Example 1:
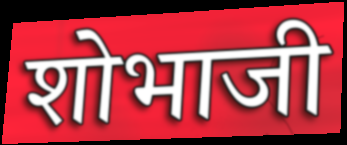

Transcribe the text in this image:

शोभाजी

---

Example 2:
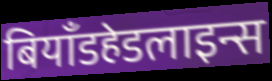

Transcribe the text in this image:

बियॉंडहेडलाइन्स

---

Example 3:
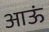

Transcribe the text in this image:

आऊं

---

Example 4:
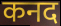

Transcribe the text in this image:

कनद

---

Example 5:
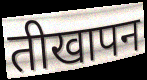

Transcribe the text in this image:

तीखापन